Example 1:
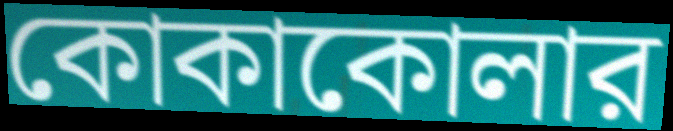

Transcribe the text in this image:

কোকাকোলার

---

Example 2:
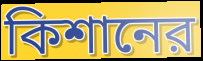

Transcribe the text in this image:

কিশানের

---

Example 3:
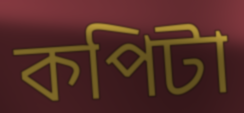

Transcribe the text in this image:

কপিটা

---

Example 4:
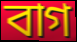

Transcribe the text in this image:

বাগ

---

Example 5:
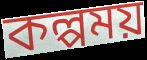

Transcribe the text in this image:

কল্পময়